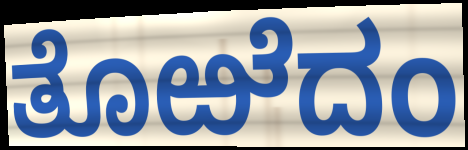
ತೊಱೆದಂ